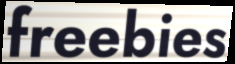
freebies